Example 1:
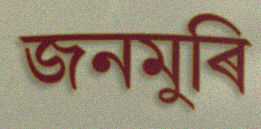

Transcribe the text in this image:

জনমুৰি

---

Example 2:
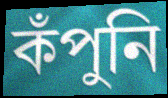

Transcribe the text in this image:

কঁপুনি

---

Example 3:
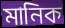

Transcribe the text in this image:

মানিক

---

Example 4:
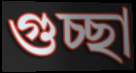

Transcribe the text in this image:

গুচ্ছা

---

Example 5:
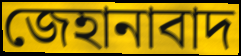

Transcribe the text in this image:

জেহানাবাদ